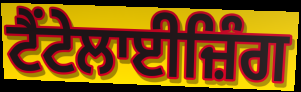
ਟੈਂਟੇਲਾਈਜ਼ਿੰਗ